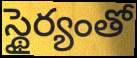
స్థైర్యంతో